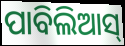
ପାବିଲିଆସ୍